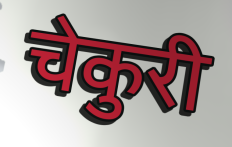
चेकुरी